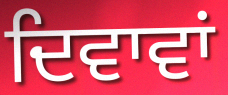
ਦਿਵਾਵਾਂ